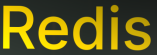
Redis